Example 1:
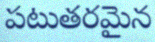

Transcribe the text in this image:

పటుతరమైన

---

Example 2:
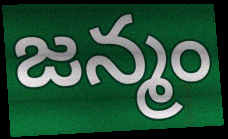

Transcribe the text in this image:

జన్మం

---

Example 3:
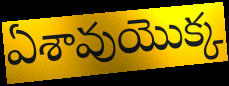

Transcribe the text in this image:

ఏశావుయొక్క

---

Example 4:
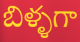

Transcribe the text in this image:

బిళ్ళగా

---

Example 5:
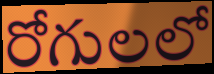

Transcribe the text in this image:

రోగులలో